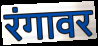
रंगावर